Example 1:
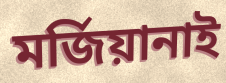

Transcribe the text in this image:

মৰ্জিয়ানাই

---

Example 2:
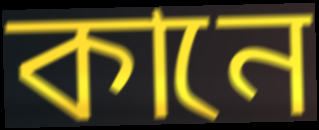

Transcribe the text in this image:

কানে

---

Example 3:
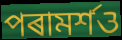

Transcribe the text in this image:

পৰামৰ্শও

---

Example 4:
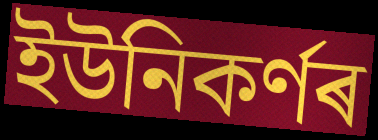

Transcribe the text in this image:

ইউনিকৰ্ণৰ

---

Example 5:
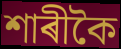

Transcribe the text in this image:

শাৰীকৈ